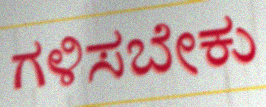
ಗಳಿಸಬೇಕು